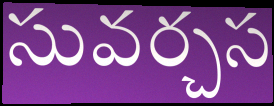
సువర్చస